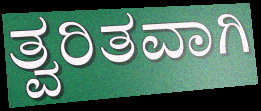
ತ್ವರಿತವಾಗಿ